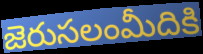
జెరుసలంమీదికి